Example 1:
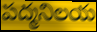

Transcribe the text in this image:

పద్మనిలయ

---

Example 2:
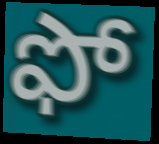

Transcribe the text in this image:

ఫో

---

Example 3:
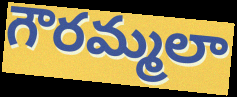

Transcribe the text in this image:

గౌరమ్మలా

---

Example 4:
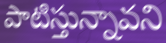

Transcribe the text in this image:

పాటిస్తున్నావని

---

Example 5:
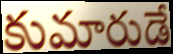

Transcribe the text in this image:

కుమారుడే